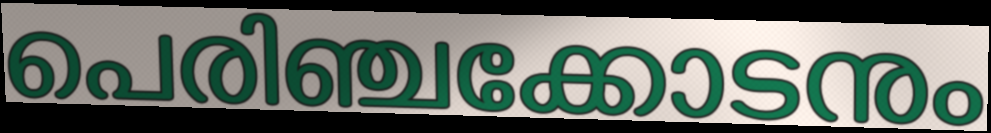
പെരിഞ്ചക്കോടനും